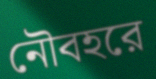
নৌবহরে